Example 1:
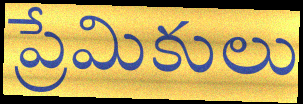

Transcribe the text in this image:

ప్రేమికులు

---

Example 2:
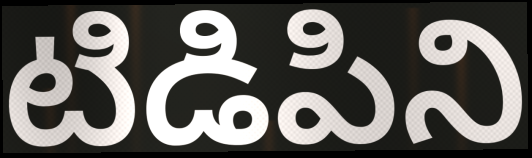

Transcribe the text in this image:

టిడిపిని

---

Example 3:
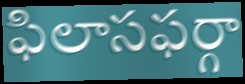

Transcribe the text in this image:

ఫిలాసఫర్గా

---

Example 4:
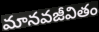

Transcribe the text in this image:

మానవజీవితం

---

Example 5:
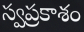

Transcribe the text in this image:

స్వప్రకాశం